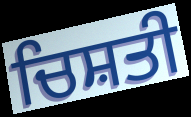
ਚਿਸ਼ਤੀ